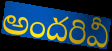
అందరివీ